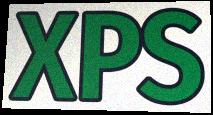
XPS